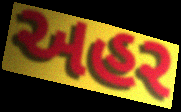
અહર